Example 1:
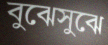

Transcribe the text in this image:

বুঝেসুঝে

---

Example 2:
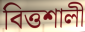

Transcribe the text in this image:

বিত্তশালী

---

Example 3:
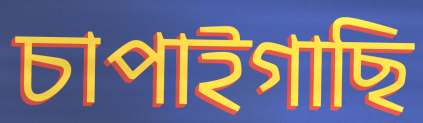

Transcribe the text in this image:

চাপাইগাছি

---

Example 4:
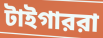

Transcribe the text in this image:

টাইগাররা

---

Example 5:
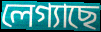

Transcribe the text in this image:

লেগ্যাছে